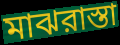
মাঝরাস্তা